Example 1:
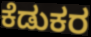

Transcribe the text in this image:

ಕೆಡುಕರ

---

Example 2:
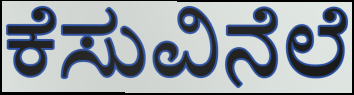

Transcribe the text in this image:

ಕೆಸುವಿನೆಲೆ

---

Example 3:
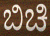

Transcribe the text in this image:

ಬಿಚಿ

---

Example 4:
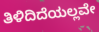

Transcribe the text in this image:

ತಿಳಿದಿದೆಯಲ್ಲವೇ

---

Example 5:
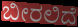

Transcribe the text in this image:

ಬೀರಲಿದೆ